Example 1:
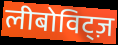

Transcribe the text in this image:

लीबोविट्ज़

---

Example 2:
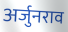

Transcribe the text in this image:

अर्जुनराव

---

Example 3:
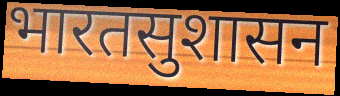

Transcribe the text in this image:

भारतसुशासन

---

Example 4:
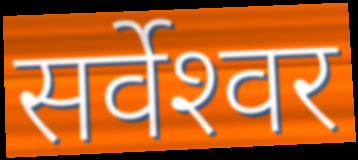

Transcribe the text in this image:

सर्वेश्‍वर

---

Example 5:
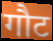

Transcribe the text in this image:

गौट